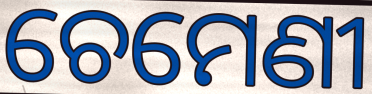
ଚେମେଣୀ